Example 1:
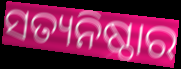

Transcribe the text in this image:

ସତ୍ୟନିଷ୍ଠାର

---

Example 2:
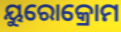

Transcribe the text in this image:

ୟୁରୋକ୍ରୋମ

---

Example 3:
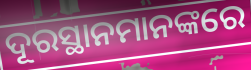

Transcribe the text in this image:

ଦୂରସ୍ଥାନମାନଙ୍କରେ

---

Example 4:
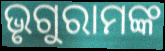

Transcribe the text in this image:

ଭୃଗୁରାମଙ୍କ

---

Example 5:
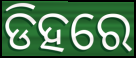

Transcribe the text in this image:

ଡିହରେ